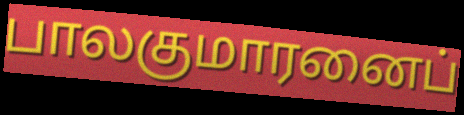
பாலகுமாரனைப்